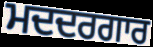
ਮਦਦਰਗਾਰ